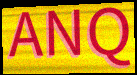
ANQ